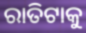
ରାତିଟାକୁ